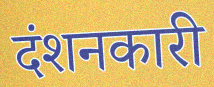
दंशनकारी